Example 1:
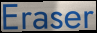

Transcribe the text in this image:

Eraser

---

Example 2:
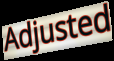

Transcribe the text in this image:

Adjusted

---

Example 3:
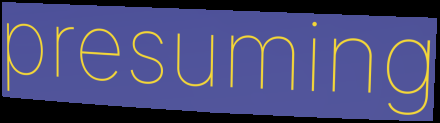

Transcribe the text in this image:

presuming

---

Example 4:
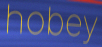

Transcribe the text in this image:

hobey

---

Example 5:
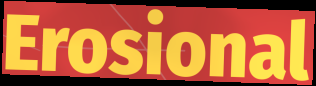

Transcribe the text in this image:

Erosional